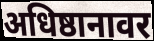
अधिष्ठानावर